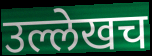
उल्लेखच